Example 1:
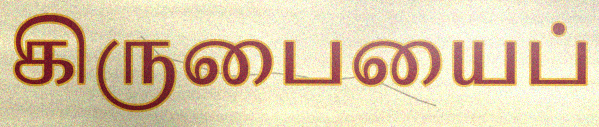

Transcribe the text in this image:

கிருபையைப்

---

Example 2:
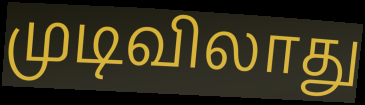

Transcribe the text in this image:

முடிவிலாது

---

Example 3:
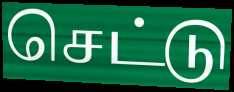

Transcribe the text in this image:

செட்டு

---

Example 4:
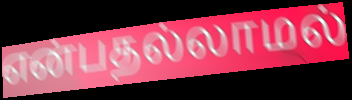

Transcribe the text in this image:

என்பதல்லாமல்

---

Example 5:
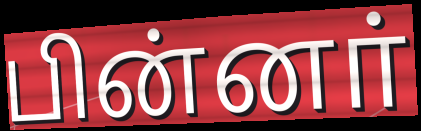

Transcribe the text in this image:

பின்னர்